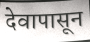
देवापासून